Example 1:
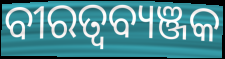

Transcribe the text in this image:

ବୀରତ୍ବବ୍ୟଞ୍ଜକ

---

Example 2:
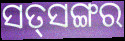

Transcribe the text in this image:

ସତ୍‌ସଙ୍ଗର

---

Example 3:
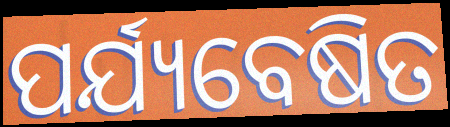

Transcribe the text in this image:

ପର୍ଯ୍ୟବେଷିତ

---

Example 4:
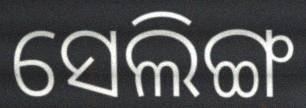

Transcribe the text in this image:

ସେଲିଙ୍ଗ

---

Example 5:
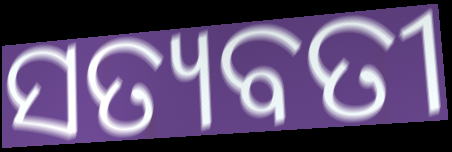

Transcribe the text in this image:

ସତ୍ୟବତୀ